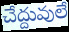
చేద్దువులే